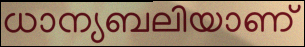
ധാന്യബലിയാണ്